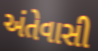
અંતેવાસી